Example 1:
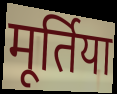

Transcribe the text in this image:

मूर्तिया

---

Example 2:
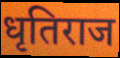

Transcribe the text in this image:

धृतिराज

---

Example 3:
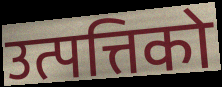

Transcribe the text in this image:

उत्पत्तिको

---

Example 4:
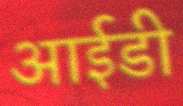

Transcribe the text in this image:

आईडी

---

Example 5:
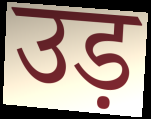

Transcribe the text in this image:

उड़